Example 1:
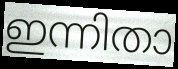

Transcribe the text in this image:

ഇന്നിതാ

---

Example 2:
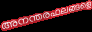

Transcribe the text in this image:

അനന്തരഫലങ്ങളെ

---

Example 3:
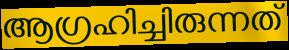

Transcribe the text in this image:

ആഗ്രഹിച്ചിരുന്നത്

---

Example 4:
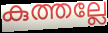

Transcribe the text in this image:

കുത്തല്ലേ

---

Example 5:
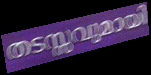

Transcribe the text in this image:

തടസ്സവുമായി